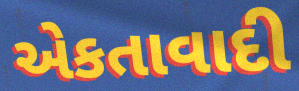
એકતાવાદી